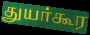
துயர்கூர